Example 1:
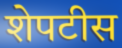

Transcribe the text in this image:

शेपटीस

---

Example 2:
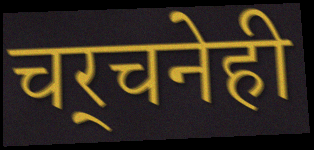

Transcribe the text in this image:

चर्चनेही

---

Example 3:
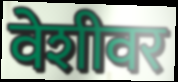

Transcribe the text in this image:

वेशीवर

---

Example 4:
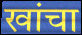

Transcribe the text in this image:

खांचा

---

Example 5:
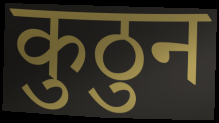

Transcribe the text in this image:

कुठुन